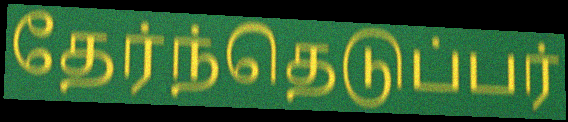
தேர்ந்தெடுப்பர்